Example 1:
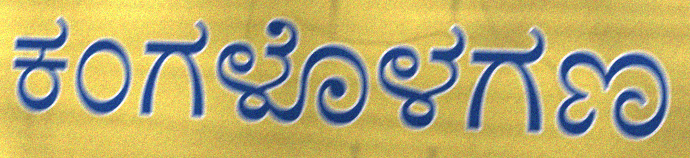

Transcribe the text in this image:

ಕಂಗಳೊಳಗಣ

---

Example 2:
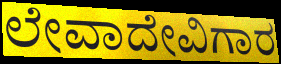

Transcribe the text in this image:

ಲೇವಾದೇವಿಗಾರ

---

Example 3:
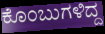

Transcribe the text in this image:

ಕೊಂಬುಗಳಿದ್ದ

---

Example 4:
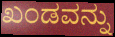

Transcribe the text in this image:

ಖಂಡವನ್ನು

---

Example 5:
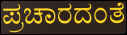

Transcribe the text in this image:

ಪ್ರಚಾರದಂತೆ